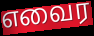
எவைர